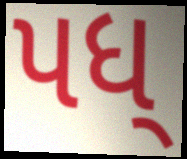
પધ્